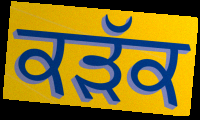
ਕੜੱਕ